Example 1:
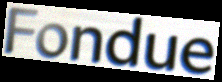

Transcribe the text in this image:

Fondue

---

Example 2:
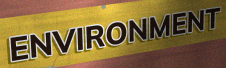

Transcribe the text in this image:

ENVIRONMENT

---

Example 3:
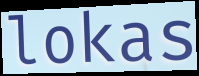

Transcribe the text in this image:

lokas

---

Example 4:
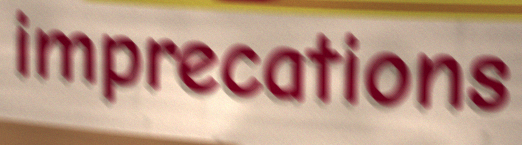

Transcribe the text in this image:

imprecations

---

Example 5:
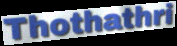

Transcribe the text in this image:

Thothathri